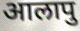
आलापु